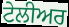
ਟੇਲੀਅਰ